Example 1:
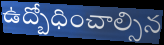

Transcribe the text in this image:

ఉద్బోధించాల్సిన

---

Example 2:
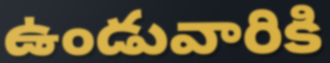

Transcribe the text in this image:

ఉండువారికి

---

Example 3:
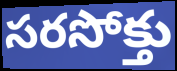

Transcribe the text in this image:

సరసోక్తు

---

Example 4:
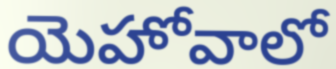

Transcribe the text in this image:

యెహోవాలో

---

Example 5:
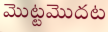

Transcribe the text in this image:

మొట్టమొదట